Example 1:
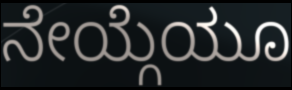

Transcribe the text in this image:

ನೇಯ್ಗೆಯೂ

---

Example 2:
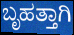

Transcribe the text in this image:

ಬೃಹತ್ತಾಗಿ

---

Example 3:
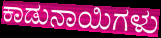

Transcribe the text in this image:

ಕಾಡುನಾಯಿಗಳು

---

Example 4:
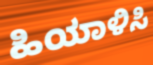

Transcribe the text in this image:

ಹಿಯಾಳಿಸಿ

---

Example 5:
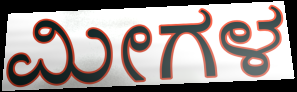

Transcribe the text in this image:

ಮೀಗಳ